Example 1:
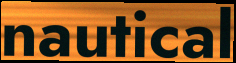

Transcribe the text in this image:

nautical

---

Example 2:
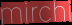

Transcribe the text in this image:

mirchi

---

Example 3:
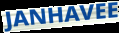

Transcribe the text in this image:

JANHAVEE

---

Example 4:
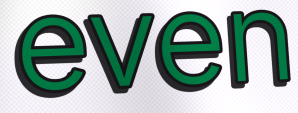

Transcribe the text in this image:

even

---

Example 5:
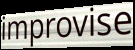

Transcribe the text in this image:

improvise